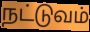
நட்டுவம்